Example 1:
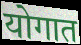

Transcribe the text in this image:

योगात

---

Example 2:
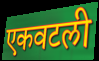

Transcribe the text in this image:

एकवटली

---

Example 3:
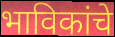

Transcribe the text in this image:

भाविकांचे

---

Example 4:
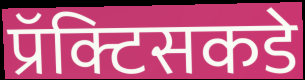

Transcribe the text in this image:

प्रॅक्टिसकडे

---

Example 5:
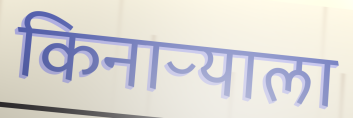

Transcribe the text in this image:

किनाऱ्याला